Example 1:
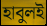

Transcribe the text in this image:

হাবুলই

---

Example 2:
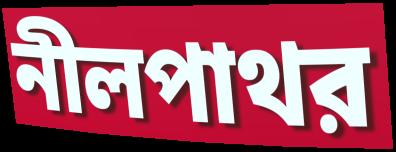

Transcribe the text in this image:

নীলপাথর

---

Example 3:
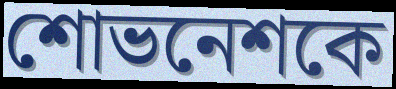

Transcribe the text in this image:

শোভনেশকে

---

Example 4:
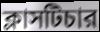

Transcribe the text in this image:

ক্লাসটিচার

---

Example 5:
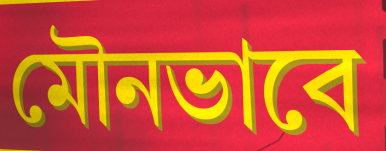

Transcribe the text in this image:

মৌনভাবে